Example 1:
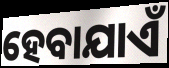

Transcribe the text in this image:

ହେବାଯାଏଁ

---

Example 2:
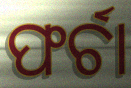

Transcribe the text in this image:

ଫର୍ଚା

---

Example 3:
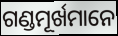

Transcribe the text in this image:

ଗଣ୍ଡମୂର୍ଖମାନେ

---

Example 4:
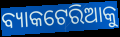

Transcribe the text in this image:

ବ୍ୟାକଟେରିଆକୁ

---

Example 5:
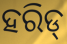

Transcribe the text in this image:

ହରିଡ୍